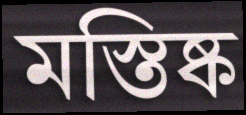
মস্তিষ্ক